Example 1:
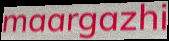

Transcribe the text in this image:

maargazhi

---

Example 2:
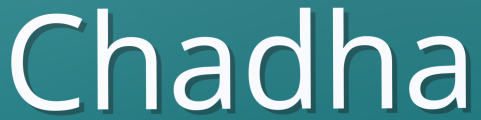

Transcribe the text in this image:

Chadha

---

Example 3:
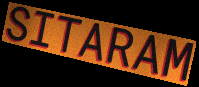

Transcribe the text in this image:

SITARAM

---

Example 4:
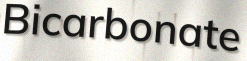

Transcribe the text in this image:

Bicarbonate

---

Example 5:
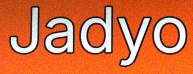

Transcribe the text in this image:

Jadyo